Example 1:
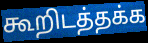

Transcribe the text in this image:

கூறிடத்தக்க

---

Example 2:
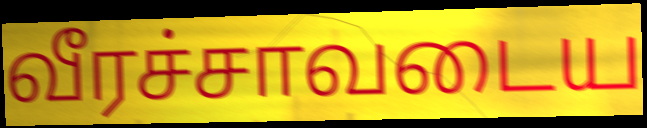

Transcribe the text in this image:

வீரச்சாவடைய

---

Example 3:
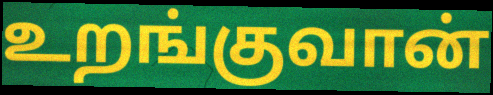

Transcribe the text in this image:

உறங்குவான்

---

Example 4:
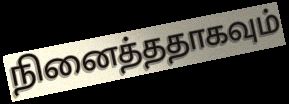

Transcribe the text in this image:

நினைத்ததாகவும்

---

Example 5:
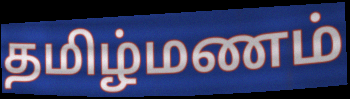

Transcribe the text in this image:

தமிழ்மணம்